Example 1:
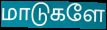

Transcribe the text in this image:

மாடுகளே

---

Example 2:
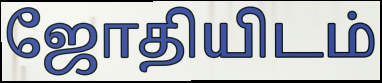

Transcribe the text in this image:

ஜோதியிடம்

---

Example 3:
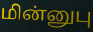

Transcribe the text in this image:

மின்னுபு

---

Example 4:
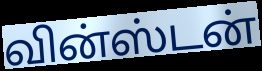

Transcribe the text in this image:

வின்ஸ்டன்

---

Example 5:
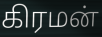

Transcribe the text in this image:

கிரமன்